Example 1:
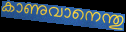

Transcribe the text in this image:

കാണുവാനെന്തു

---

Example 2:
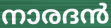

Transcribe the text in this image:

നാരദൻ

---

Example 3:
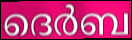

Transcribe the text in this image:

ദെർബ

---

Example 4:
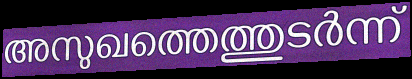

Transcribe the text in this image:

അസുഖത്തെത്തുടർന്ന്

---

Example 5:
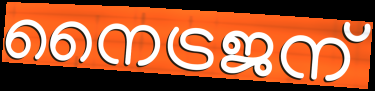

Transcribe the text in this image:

നൈട്രജന്